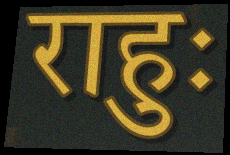
राहुः